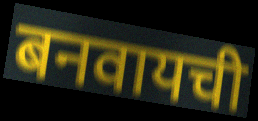
बनवायची